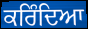
ਕਰਿੰਦਿਆ